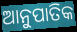
ଆନୁପାତିକ